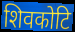
शिवकोटि